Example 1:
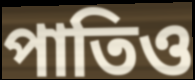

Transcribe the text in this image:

পাতিও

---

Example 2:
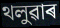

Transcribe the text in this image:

থলুৱাৰ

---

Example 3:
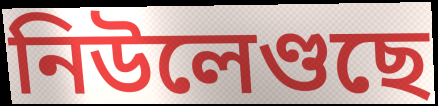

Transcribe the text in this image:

নিউলেণ্ডছে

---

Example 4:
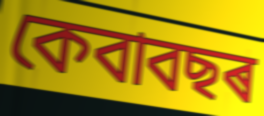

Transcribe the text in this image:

কেবাবছৰ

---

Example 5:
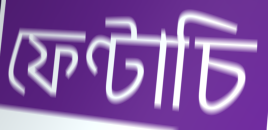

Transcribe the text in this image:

ফেণ্টাচি